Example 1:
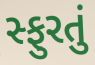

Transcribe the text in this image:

સ્ફુરતું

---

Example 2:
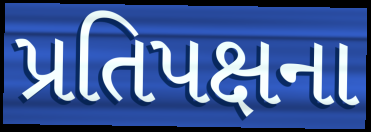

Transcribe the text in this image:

પ્રતિપક્ષના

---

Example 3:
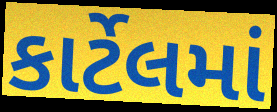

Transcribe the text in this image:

કાર્ટેલમાં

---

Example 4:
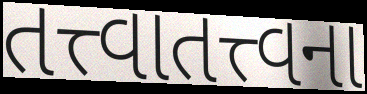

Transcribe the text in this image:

તત્ત્વાતત્ત્વના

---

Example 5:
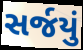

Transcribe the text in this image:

સર્જયું